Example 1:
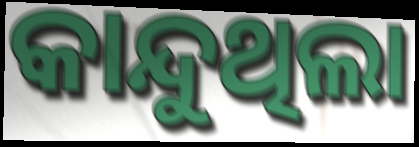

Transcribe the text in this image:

କାନ୍ଦୁଥିଲା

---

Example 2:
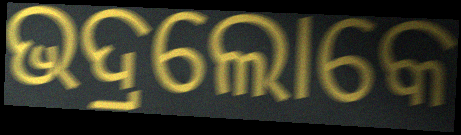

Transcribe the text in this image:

ଭଦ୍ରଲୋକେ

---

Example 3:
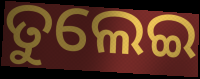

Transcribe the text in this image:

ତୁଲେଇ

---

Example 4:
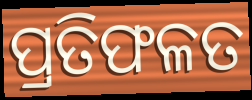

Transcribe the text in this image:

ପ୍ରତିଫଳତ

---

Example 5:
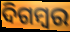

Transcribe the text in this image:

ଦିଗମ୍ୱର